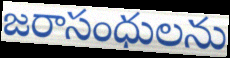
జరాసంధులను